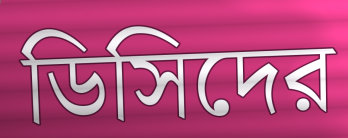
ডিসিদের